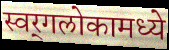
स्वर्गलोकामध्ये